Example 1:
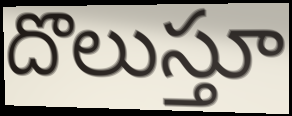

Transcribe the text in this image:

దొలుస్తూ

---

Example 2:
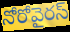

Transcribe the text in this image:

నోరోవైరస్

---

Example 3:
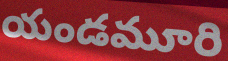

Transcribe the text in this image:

యండమూరి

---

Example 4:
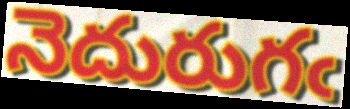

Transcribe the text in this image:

నెదురుగఁ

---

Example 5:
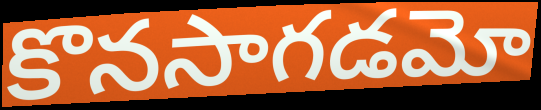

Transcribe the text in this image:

కొనసాగడమో